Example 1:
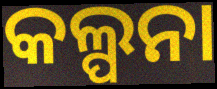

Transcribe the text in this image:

କଲ୍ପନା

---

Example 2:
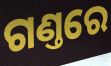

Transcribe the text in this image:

ଗଣ୍ତରେ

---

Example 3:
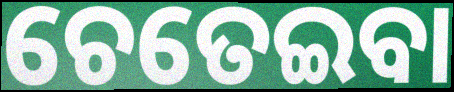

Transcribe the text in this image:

ଚେତେଇବା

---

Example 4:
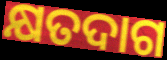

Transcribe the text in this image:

କ୍ଷତଦାଗ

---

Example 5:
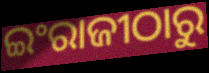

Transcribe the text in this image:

ଇଂରାଜୀଠାରୁ